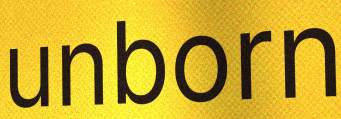
unborn